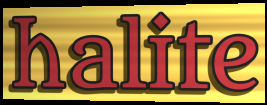
halite